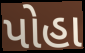
પોહા